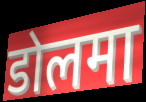
डोलमा